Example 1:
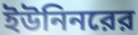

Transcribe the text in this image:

ইউনিনরের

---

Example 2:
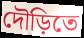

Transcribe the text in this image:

দৌড়িতে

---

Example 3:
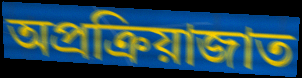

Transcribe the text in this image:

অপ্রক্রিয়াজাত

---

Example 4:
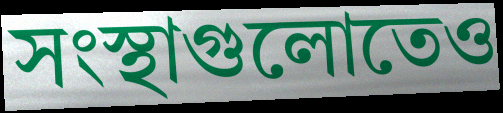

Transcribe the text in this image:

সংস্থাগুলোতেও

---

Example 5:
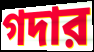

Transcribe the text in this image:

গদার